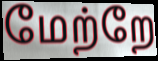
மேற்றே